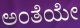
ಅಂತೆಯೇ